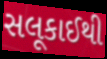
સલૂકાઈથી